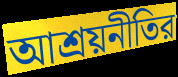
আশ্রয়নীতির